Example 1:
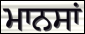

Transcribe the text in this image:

ਮਾਨਸਾਂ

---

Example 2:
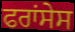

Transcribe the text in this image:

ਫਰਾਂਸੇਸ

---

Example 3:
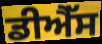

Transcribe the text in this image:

ਡੀਐੱਸ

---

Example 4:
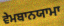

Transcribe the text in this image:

ਵੇਮਬਾਨਯਾਮਾ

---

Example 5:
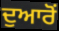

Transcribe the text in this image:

ਦੁਆਰੋਂ